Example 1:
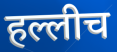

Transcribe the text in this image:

हल्लीच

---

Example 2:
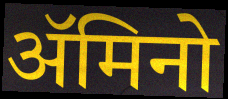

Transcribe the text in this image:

ॲमिनो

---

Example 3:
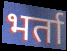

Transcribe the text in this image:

भर्ता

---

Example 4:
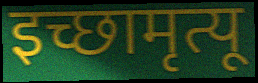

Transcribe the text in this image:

इच्छामृत्यू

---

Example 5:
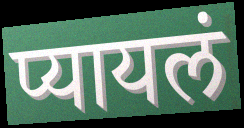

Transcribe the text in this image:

प्यायलं